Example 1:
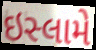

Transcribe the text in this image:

ઇસ્લામે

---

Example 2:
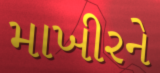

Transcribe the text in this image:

માખીરને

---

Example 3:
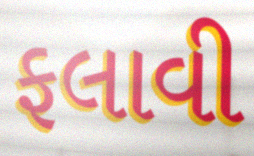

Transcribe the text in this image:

ફલાવી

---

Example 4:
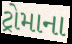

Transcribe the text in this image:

ટ્રોમાના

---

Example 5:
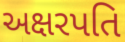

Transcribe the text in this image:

અક્ષરપતિ